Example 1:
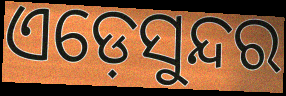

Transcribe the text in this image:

ଏଡ଼େସୁନ୍ଦର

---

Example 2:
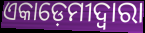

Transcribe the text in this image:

ଏକାଡ଼େମୀଦ୍ୱାରା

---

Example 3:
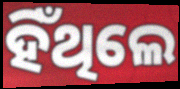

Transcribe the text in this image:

ହିଁଥିଲେ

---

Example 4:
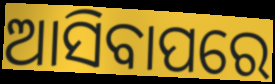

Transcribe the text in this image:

ଆସିବାପରେ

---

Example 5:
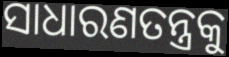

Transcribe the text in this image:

ସାଧାରଣତନ୍ତ୍ରକୁ